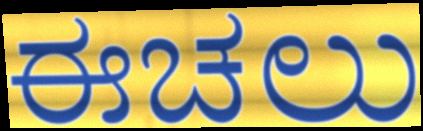
ಈಚಲು